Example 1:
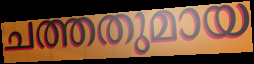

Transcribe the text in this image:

ചത്തതുമായ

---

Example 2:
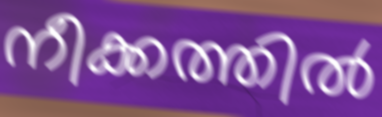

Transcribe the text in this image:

നീക്കത്തിൽ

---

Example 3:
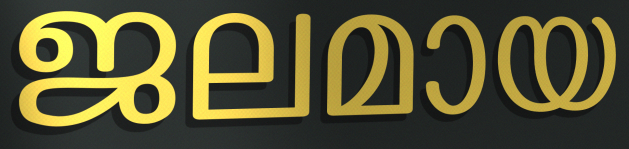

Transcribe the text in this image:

ജലമായ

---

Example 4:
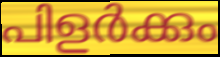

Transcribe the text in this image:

പിളർക്കും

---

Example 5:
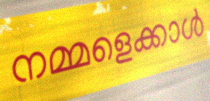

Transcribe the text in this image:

നമ്മളെക്കാൾ